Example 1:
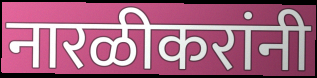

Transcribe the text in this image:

नारळीकरांनी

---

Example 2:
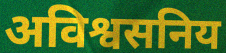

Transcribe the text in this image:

अविश्वसनिय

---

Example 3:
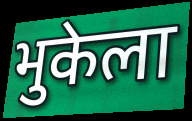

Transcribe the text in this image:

भुकेला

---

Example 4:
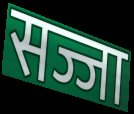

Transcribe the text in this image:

सज्जा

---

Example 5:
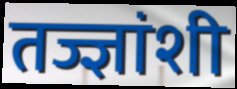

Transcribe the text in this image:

तज्ज्ञांशी